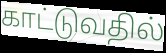
காட்டுவதில்